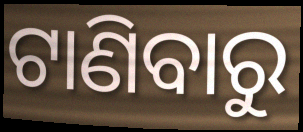
ଟାଣିବାରୁ